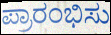
ಪ್ರಾರಂಭಿಸು